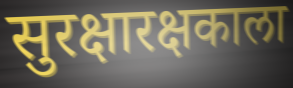
सुरक्षारक्षकाला